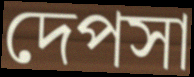
দেপসা